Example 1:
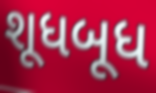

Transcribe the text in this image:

શૂધબૂધ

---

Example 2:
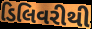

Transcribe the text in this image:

ડિલિવરીથી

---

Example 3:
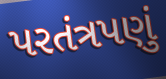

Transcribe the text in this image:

પરતંત્રપણું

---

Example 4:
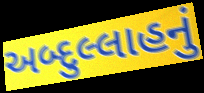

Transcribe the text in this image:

અબ્દુલ્લાહનું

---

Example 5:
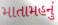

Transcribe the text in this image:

માતામહનું